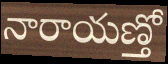
నారాయణ్తో